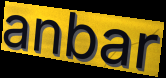
anbar